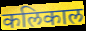
कलिकाल